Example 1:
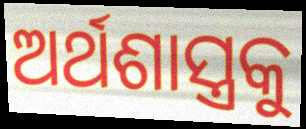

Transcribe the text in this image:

ଅର୍ଥଶାସ୍ତ୍ରକୁ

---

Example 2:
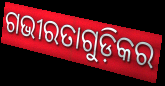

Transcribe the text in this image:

ଗଭୀରତାଗୁଡ଼ିକର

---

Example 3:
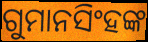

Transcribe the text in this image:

ଗୁମାନସିଂହଙ୍କ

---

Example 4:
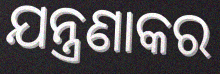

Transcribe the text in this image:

ଯନ୍ତ୍ରଣାକର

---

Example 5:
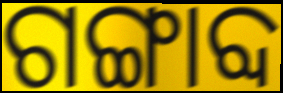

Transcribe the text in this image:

ଗଙ୍ଗାବ୍ଦ